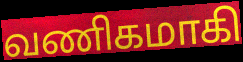
வணிகமாகி